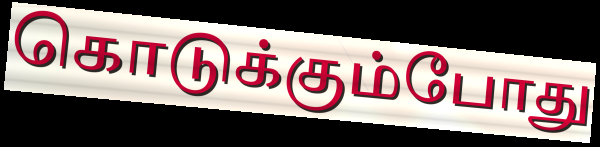
கொடுக்கும்போது